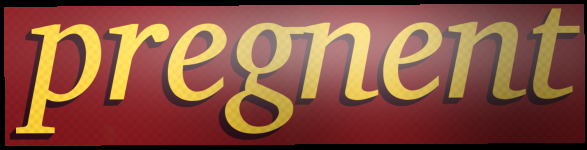
pregnent